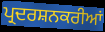
ਪ੍ਰਦਰਸ਼ਨਕਰੀਆਂ